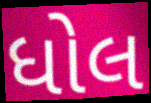
ધોલ